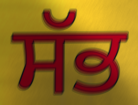
ਸੱਭ